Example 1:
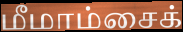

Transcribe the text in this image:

மீமாம்சைக்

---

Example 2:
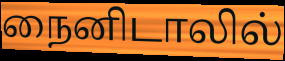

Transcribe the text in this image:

நைனிடாலில்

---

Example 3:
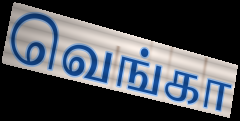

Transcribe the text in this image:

வெங்கா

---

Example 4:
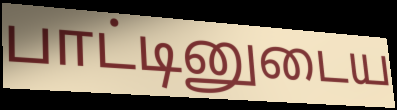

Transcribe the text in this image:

பாட்டினுடைய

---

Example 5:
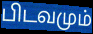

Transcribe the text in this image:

பிடவமும்